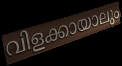
വിളക്കായാലും